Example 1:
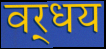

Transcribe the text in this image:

वर्धय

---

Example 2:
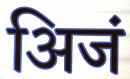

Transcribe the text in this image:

अिजं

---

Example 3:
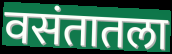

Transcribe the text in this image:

वसंतातला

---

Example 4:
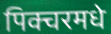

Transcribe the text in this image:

पिक्चरमधे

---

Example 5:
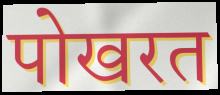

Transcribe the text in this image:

पोखरत